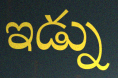
ఇడ్ను